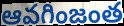
ఆవగింజంత